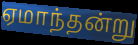
ஏமாந்தன்று